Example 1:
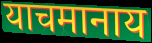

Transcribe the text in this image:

याचमानाय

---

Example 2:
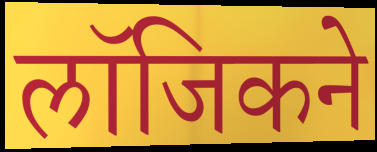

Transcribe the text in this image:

लॉजिकने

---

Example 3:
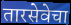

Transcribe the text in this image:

तारसेवेचा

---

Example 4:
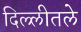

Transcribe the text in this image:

दिल्लीतले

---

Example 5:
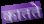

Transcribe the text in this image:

कातते